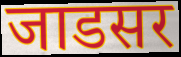
जाडसर